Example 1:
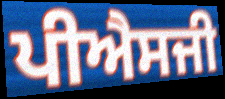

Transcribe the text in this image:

ਪੀਐਸਜੀ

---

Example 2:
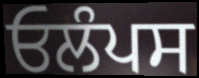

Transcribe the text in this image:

ਓਲੰਪਸ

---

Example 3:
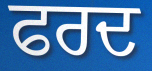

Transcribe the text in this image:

ਫਰਦ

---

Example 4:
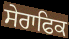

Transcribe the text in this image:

ਸੇਰਾਫਿਕ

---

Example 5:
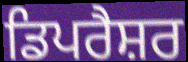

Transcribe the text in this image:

ਡਿਪਰੈਸ਼ਰ